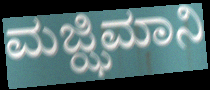
ಮಜ್ಝಿಮಾನಿ